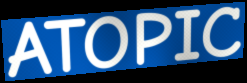
ATOPIC